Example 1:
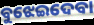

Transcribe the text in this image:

ବୁଝେଇଦେବା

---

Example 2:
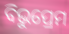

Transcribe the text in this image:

ବିଭୁପ୍ରେମ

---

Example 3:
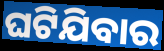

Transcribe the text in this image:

ଘଟିଯିବାର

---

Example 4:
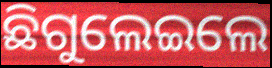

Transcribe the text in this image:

ଛିଗୁଲେଇଲେ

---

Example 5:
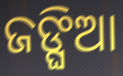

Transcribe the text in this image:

ଜଙ୍ଘିଆ